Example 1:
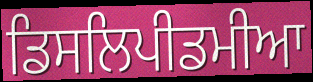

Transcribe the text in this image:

ਡਿਸਲਿਪੀਡਮੀਆ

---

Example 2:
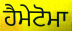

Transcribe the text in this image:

ਹੈਮੇਟੋਮਾ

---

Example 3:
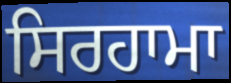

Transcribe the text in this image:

ਸਿਰਹਾਮਾ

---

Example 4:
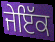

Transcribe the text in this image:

ਜੇਇੱਕ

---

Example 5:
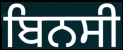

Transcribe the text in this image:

ਬਿਨਸੀ